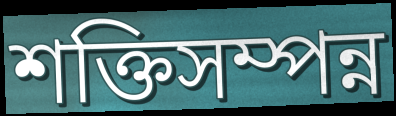
শক্তিসম্পন্ন